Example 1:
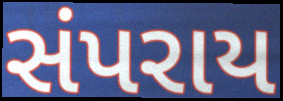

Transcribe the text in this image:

સંપરાય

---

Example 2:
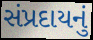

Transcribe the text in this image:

સંપ્રદાયનું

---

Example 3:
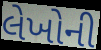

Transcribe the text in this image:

લેખોની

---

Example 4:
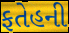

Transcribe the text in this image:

ફતેહની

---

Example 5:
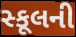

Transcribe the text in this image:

સ્કૂલની